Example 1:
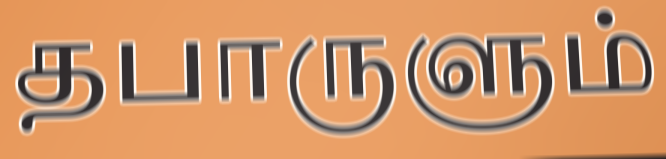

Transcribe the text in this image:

தபாருளும்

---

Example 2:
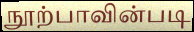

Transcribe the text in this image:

நூற்பாவின்படி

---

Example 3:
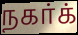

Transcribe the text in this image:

நகர்க்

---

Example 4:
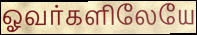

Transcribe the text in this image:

ஓவர்களிலேயே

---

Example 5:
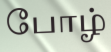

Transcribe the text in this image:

போழ்